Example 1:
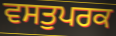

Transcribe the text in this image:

ਵਸਤੁਪਰਕ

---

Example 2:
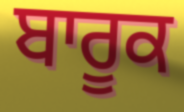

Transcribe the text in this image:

ਬਾਰੂਕ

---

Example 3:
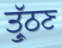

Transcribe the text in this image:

ਤ੍ਰੁੱਠਣ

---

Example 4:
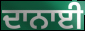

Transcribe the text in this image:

ਦਾਨਾਈ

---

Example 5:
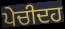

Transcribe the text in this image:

ਪੇਚੀਦਹ